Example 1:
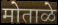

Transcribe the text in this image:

मोताळे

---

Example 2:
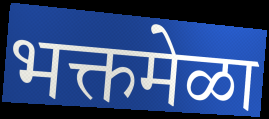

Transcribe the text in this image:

भक्तमेळा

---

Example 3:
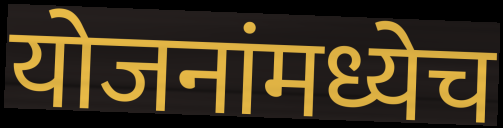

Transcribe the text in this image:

योजनांमध्येच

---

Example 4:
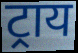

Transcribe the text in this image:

ट्राय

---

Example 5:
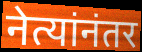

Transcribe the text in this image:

नेत्यांनंतर